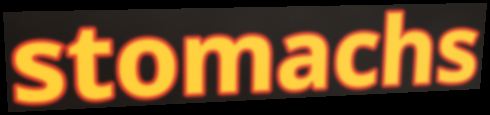
stomachs